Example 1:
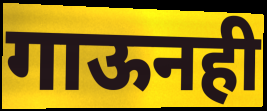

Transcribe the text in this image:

गाऊनही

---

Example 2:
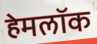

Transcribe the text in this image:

हेमलॉक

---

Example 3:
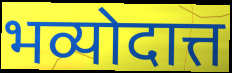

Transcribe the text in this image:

भव्योदात्त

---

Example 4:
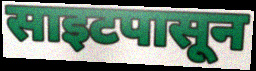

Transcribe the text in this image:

साइटपासून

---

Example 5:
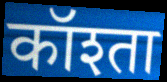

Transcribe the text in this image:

कॉश्ता